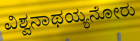
ವಿಶ್ವನಾಥಯ್ಯನೋರು